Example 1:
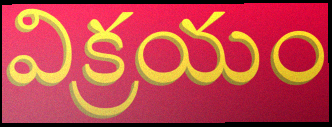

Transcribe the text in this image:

విక్రయం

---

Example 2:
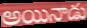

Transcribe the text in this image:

అయినాడు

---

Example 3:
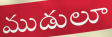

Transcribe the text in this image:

ముడులూ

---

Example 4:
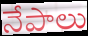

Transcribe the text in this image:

నేపాలు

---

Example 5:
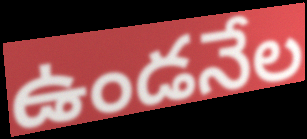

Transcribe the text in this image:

ఉండనేల